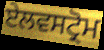
ਏਲਵਸਟ੍ਰੋਮ